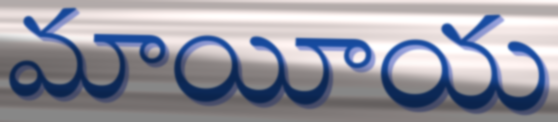
మాయీయ